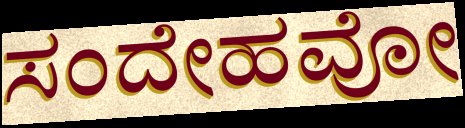
ಸಂದೇಹವೋ